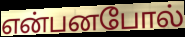
என்பனபோல்